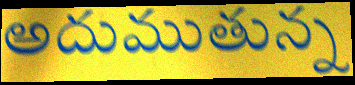
అదుముతున్న